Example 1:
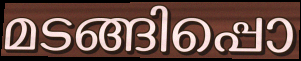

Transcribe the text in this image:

മടങ്ങിപ്പൊ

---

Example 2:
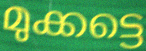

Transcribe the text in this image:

മുക്കട്ടെ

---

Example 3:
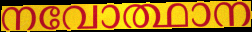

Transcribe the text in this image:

നവോത്ഥാന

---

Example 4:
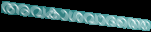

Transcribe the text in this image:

അവകാശവാദത്തെ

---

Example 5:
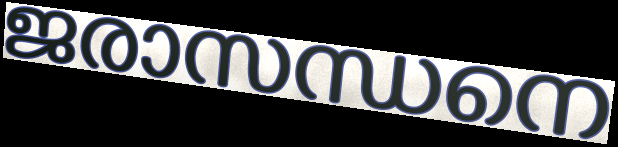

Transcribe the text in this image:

ജരാസന്ധനെ